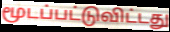
மூடப்பட்டுவிட்டது